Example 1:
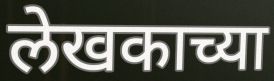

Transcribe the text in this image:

लेखकाच्या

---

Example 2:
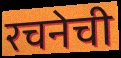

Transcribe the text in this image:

रचनेची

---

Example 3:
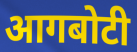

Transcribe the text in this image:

आगबोटी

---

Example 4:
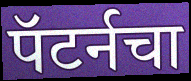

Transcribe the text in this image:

पॅटर्नचा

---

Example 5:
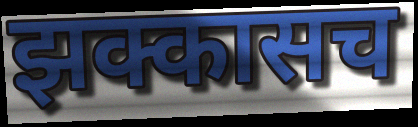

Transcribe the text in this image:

झक्कासच